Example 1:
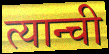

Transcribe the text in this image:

त्यान्ची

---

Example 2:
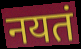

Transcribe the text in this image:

नयतं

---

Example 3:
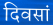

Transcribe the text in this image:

दिवसां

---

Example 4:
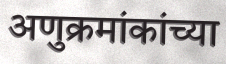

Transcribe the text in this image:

अणुक्रमांकांच्या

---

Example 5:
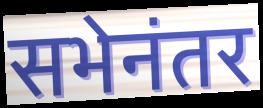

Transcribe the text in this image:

सभेनंतर